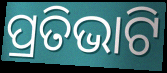
ପ୍ରତିଭାଟି